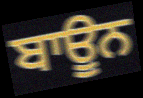
ਬਾਊਨ